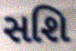
સશિ